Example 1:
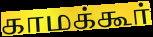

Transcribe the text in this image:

காமக்கூர்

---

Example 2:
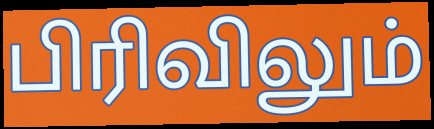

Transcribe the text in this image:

பிரிவிலும்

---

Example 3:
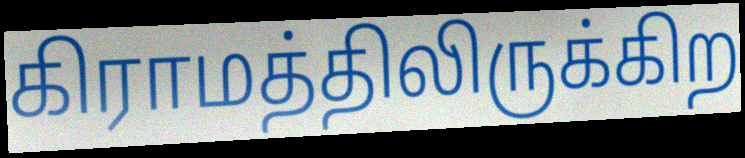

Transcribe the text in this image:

கிராமத்திலிருக்கிற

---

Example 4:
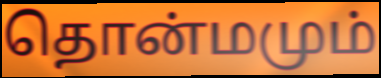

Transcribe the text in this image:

தொன்மமும்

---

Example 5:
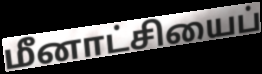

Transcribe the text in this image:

மீனாட்சியைப்